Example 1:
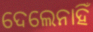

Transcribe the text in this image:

ଦେଲେନାହିଁ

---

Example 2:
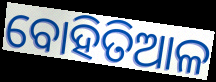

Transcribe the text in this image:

ବୋହିତିଆଳ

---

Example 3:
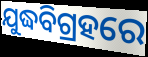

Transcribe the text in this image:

ଯୁଦ୍ଧବିଗ୍ରହରେ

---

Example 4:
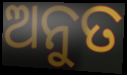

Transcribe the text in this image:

ଅନୁତ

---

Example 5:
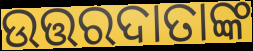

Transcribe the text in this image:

ଉତ୍ତରଦାତାଙ୍କ